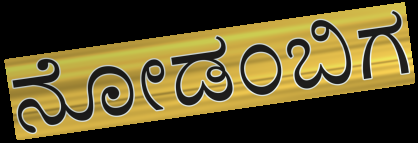
ನೋಡಂಬಿಗ